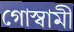
গোস্বামী